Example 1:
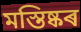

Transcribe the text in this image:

মস্তিষ্কৰ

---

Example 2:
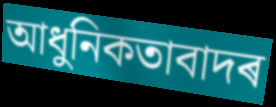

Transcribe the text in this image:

আধুনিকতাবাদৰ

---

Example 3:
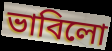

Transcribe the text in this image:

ভাবিলো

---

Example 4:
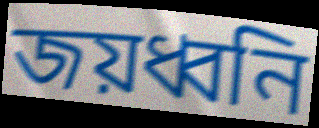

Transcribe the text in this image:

জয়ধ্বনি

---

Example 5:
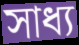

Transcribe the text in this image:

সাধ্য